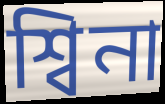
শ্বিনা